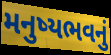
મનુષ્યભવનું